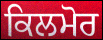
ਕਿਲਮੋਰ